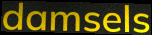
damsels